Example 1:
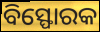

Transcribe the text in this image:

ବିସ୍ଫୋରକ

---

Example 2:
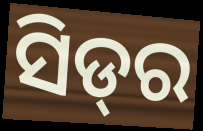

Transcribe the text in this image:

ସିଡ୍‌ର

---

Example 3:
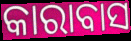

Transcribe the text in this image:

କାରାବାସ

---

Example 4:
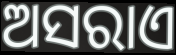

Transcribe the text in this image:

ଅସରାଏ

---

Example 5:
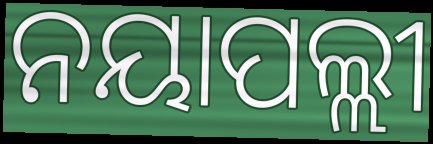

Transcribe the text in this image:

ନୟାପଲ୍ଲୀ